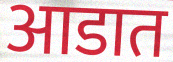
आडात